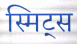
स्मिट्स